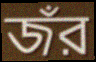
জঁর